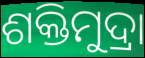
ଶକ୍ତିମୁଦ୍ରା